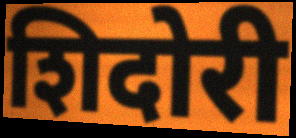
शिदोरी